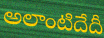
అలాంటిదేదీ